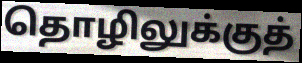
தொழிலுக்குத்